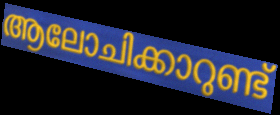
ആലോചിക്കാറുണ്ട്